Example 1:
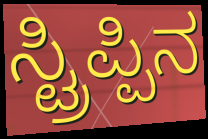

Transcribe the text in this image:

ಸ್ಟ್ರಿಪ್ಪಿನ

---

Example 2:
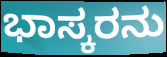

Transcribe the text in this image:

ಭಾಸ್ಕರನು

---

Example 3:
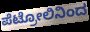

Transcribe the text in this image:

ಪೆಟ್ರೋಲಿನಿಂದ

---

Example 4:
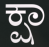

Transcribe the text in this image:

ಕ್ಷಾ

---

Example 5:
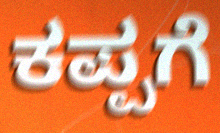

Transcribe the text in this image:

ಕಪ್ಪಗೆ